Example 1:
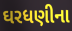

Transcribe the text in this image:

ઘરધણીના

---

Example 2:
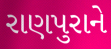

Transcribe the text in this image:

રાણપુરાને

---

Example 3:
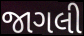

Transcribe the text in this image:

જાગલી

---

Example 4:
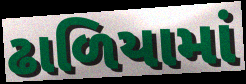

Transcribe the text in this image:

ઢાળિયામાં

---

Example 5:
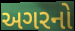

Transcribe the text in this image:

અગરનો